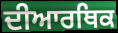
ਦੀਆਰਥਿਕ